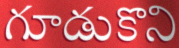
గూడుకొని